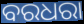
ବରଧରା